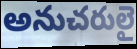
అనుచరులై